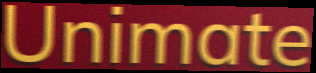
Unimate